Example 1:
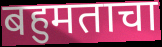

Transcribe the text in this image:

बहुमताचा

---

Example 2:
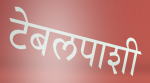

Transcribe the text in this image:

टेबलपाशी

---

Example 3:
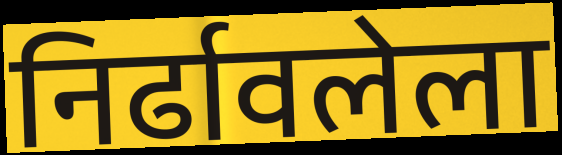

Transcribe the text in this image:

निर्ढावलेला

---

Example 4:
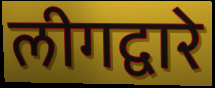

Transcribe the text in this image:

लीगद्वारे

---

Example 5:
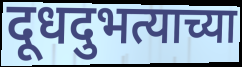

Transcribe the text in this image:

दूधदुभत्याच्या